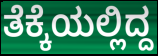
ತೆಕ್ಕೆಯಲ್ಲಿದ್ದ